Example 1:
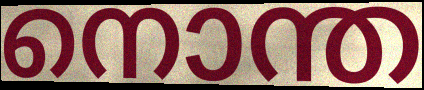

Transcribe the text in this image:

നൊന്ത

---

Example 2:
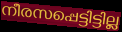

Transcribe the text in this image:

നീരസപ്പെട്ടിട്ടില്ല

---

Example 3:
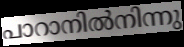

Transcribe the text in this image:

പാറാനിൽനിന്നു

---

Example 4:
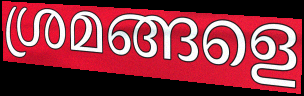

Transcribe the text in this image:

ശ്രമങ്ങളെ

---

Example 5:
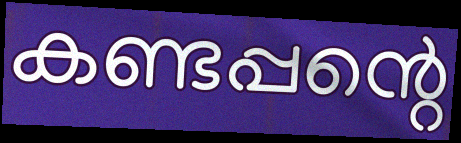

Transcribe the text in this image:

കണ്ടപ്പന്റെ